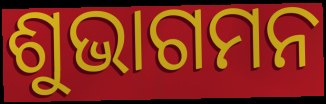
ଶୁଭାଗମନ